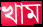
খাম